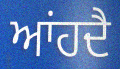
ਆਂਹਦੈ